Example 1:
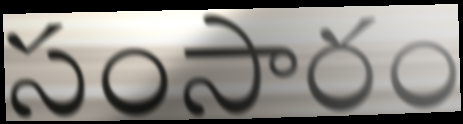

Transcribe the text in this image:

సంసారం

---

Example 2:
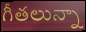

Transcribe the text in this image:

గీతలున్నా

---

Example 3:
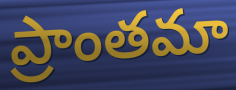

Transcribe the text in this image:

ప్రాంతమా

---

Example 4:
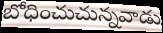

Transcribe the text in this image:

బోధించుచున్నవాడు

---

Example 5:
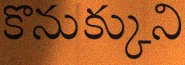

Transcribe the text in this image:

కొనుక్కుని